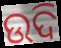
ଉଦି